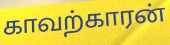
காவற்காரன்